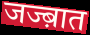
जज्ब़ात